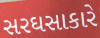
સરઘસાકારે